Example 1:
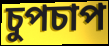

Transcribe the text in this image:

চুপচাপ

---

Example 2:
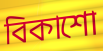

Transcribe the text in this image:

বিকাশো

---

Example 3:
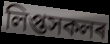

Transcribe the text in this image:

লিপ্তসকলৰ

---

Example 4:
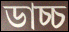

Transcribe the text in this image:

ডাচ্চ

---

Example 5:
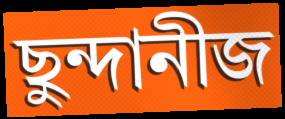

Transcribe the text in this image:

ছুন্দানীজ